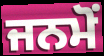
ਜਨਮੋਂ